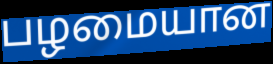
பழமையான